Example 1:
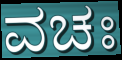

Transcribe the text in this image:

ವಚಃ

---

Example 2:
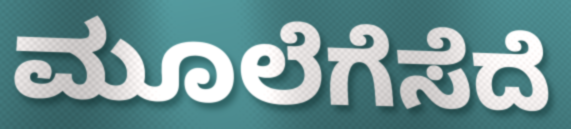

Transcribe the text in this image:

ಮೂಲೆಗೆಸೆದೆ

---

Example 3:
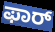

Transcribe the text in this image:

ಫಾರ್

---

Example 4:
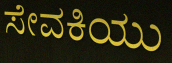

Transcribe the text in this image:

ಸೇವಕಿಯು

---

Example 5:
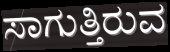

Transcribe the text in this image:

ಸಾಗುತ್ತಿರುವ